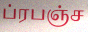
ப்ரபஞ்ச